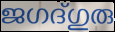
ജഗദ്ഗുരു